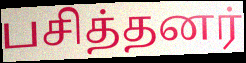
பசித்தனர்